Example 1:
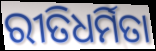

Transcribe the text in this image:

ରୀତିଧର୍ମିତା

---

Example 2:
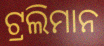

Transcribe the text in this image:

ଟ୍ରଲିମାନ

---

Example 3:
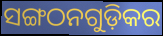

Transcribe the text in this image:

ସଙ୍ଗଠନଗୁଡ଼ିକର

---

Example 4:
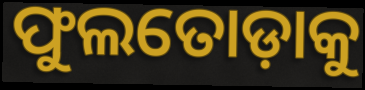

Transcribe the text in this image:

ଫୁଲତୋଡ଼ାକୁ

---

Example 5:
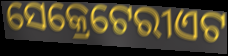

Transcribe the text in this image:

ସେକ୍ରେଟେରୀଏଟ